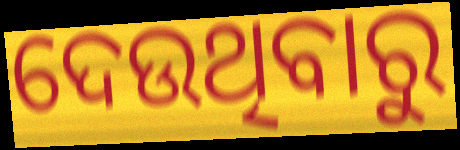
ଦେଉଥିବାରୁ